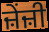
ਜ਼ੇਂਜ਼ੀ